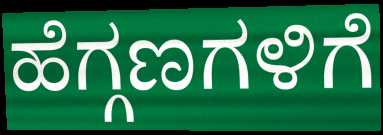
ಹೆಗ್ಗಣಗಳಿಗೆ